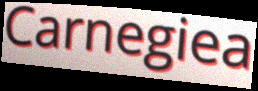
Carnegiea